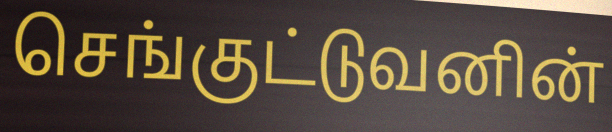
செங்குட்டுவனின்